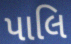
પાલિ